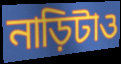
নাড়িটাও